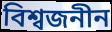
বিশ্বজনীন